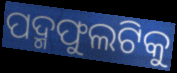
ପଦ୍ମଫୁଲଟିକୁ